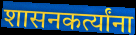
शासनकर्त्यांना